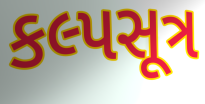
કલ્પસૂત્ર